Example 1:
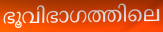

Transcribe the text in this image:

ഭൂവിഭാഗത്തിലെ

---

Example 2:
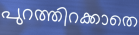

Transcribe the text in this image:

പുറത്തിറക്കാതെ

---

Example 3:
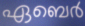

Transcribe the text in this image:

ഏബെർ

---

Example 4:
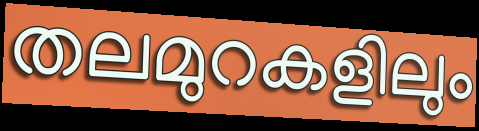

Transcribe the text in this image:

തലമുറകളിലും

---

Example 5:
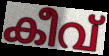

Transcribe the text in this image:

കീവ്